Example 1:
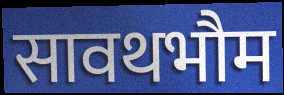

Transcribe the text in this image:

सावथभौम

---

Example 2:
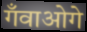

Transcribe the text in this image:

गँवाओगे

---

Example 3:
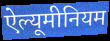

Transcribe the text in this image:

ऐल्यूमीनियम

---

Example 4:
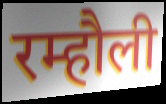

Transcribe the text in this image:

रम्हौली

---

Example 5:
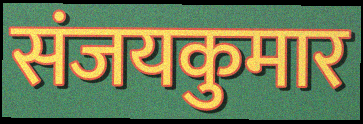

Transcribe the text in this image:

संजयकुमार